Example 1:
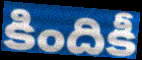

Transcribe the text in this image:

కిందికీ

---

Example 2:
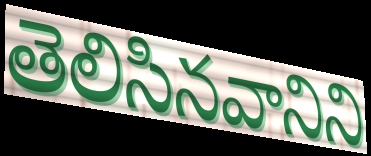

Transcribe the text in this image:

తెలిసినవానిని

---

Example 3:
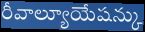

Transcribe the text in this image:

రీవాల్యూయేషన్కు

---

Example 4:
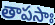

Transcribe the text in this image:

తాపసాః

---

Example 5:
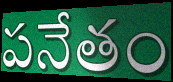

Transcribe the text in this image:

పనేతం